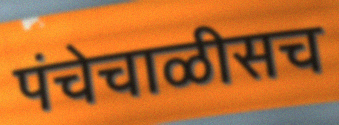
पंचेचाळीसच